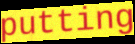
putting